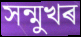
সন্মুখৰ